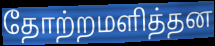
தோற்றமளித்தன